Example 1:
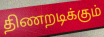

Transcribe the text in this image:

திணறடிக்கும்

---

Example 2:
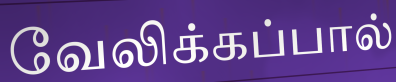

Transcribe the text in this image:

வேலிக்கப்பால்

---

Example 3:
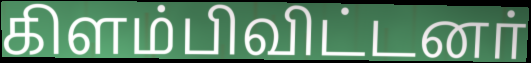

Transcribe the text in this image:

கிளம்பிவிட்டனர்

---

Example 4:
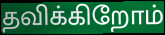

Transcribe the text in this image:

தவிக்கிறோம்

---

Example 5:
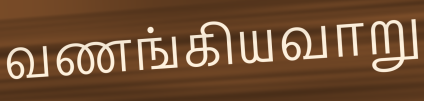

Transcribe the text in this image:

வணங்கியவாறு